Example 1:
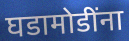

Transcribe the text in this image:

घडामोडींना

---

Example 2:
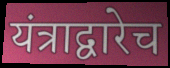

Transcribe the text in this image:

यंत्राद्वारेच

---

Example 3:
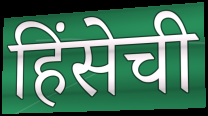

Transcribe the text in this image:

हिंसेची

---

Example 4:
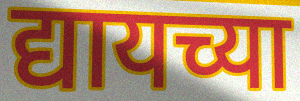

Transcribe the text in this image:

द्यायच्या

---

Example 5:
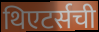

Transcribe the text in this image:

थिएटर्सची